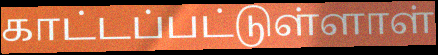
காட்டப்பட்டுள்ளாள்